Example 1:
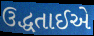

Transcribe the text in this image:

ઉદ્ધતાઈએ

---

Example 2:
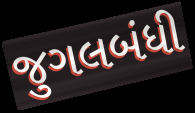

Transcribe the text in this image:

જુગલબંધી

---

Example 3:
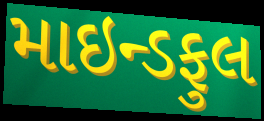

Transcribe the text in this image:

માઇન્ડફુલ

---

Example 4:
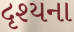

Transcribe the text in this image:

દૃશ્યના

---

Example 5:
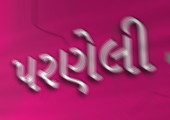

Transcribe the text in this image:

પરણેલી